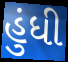
હુંધી